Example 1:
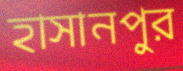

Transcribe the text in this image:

হাসানপুর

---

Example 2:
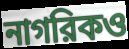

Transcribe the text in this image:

নাগরিকও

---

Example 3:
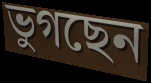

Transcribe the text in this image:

ভুগছেন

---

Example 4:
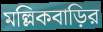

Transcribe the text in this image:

মল্লিকবাড়ির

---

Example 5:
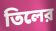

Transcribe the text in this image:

তিলের